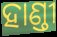
ହାଣ୍ଡୀ